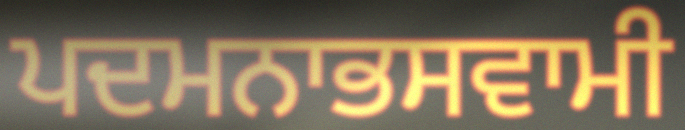
ਪਦਮਨਾਭਸਵਾਮੀ